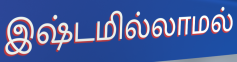
இஷ்டமில்லாமல்